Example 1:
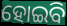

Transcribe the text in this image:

ହୋଇିବ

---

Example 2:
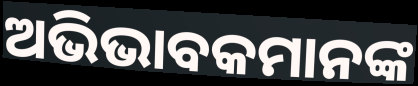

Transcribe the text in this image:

ଅଭିଭାବକମାନଙ୍କ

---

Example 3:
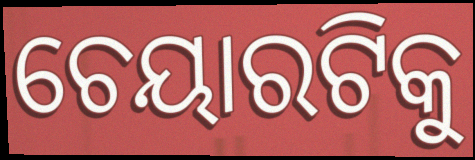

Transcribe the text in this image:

ଚେୟାରଟିକୁ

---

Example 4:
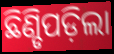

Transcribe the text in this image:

ଛିଣ୍ଡିପଡ଼ିଲା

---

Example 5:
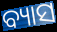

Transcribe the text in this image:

ବ୍ୟାସ